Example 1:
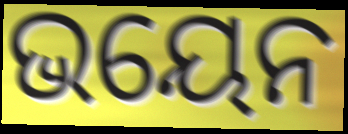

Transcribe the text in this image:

ଭୟେନ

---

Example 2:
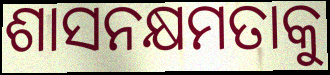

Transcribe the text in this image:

ଶାସନକ୍ଷମତାକୁ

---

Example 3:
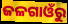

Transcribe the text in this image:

ଜଳଗାଓଁରୁ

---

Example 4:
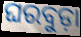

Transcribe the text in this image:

ଘରବୁଡ଼ା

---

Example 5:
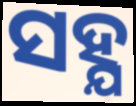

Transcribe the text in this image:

ସହ୍ଯ